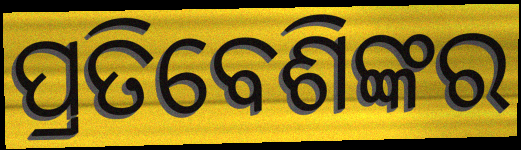
ପ୍ରତିବେଶିଙ୍କର